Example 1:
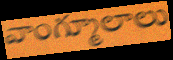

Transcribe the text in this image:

వాంగ్మూలాలు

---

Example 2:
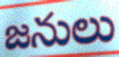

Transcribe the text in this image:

జనులు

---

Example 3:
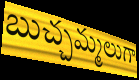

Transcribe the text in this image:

బుచ్చమ్మలుగా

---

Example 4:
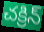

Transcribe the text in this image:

చక్రిన్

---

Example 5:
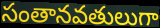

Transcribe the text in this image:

సంతానవతులుగా